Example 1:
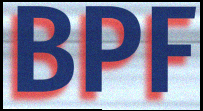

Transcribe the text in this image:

BPF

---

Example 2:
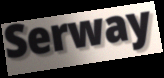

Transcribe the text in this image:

Serway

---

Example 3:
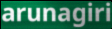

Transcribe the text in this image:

arunagiri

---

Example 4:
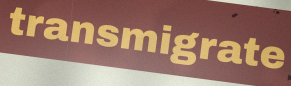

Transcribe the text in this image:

transmigrate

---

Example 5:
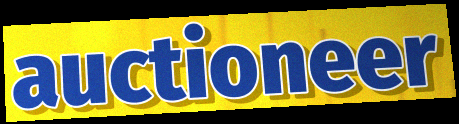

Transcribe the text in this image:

auctioneer